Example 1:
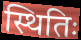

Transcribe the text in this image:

स्थितिः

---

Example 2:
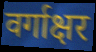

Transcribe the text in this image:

वर्गाक्षर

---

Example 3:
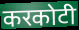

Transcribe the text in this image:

करकोटी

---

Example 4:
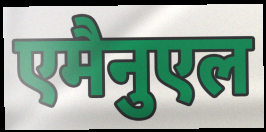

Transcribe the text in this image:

एमैनुएल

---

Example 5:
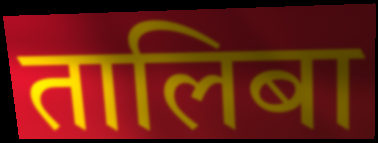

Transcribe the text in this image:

तालिबा